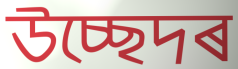
উচ্ছেদৰ